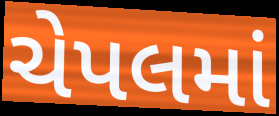
ચેપલમાં